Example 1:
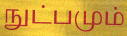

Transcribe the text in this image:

நுட்பமும்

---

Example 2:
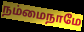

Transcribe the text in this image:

நம்மைநாமே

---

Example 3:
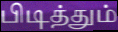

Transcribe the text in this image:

பிடித்தும்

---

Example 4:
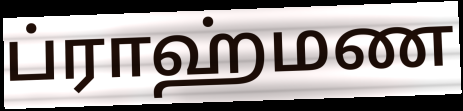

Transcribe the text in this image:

ப்ராஹ்மண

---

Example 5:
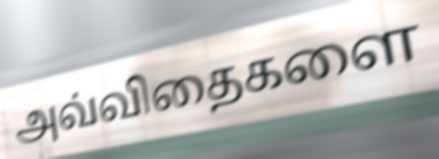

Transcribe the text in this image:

அவ்விதைகளை